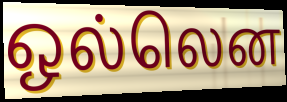
ஒல்லென